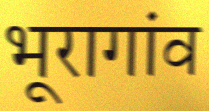
भूरागांव